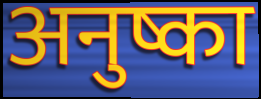
अनुष्का